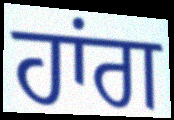
ਹਾਂਗ